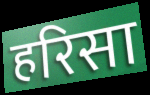
हरिसा